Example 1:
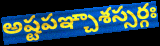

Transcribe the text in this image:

అష్టపఞ్చాశస్సర్గః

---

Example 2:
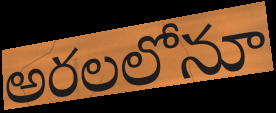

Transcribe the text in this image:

అరలలోనూ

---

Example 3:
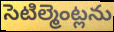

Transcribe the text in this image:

సెటిల్మెంట్లను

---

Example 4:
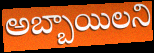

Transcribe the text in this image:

అబ్బాయిలని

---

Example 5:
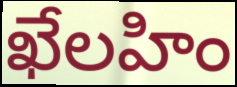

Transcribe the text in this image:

ఖేలహిం